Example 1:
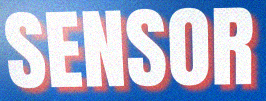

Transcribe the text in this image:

SENSOR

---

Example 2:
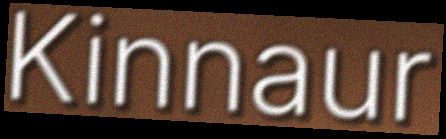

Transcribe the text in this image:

Kinnaur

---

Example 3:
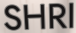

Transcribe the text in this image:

SHRI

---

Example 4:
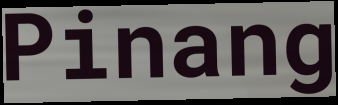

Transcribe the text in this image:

Pinang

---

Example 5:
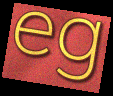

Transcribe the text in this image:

eg